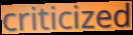
criticized